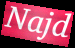
Najd